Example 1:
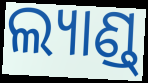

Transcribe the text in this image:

ଲ୍ୟାଣ୍ଡ୍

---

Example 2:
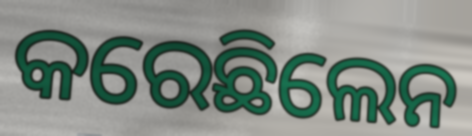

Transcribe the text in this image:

କରେଛିଲେନ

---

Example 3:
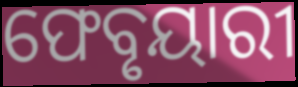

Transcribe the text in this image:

ଫେବୃୟାରୀ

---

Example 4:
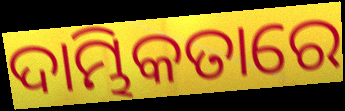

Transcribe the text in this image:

ଦାମ୍ଭିକତାରେ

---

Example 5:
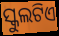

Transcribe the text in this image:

ସ୍କୁଲଟିଏ